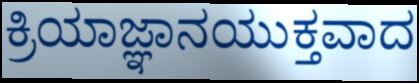
ಕ್ರಿಯಾಜ್ಞಾನಯುಕ್ತವಾದ